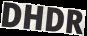
DHDR